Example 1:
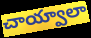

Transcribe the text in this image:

చాయ్వాలా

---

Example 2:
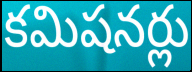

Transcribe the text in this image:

కమిషనర్లు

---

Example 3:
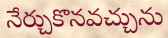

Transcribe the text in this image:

నేర్చుకొనవచ్చును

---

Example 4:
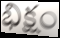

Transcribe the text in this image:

భిక్షం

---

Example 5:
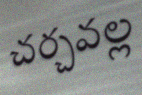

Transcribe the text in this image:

చర్చవల్ల